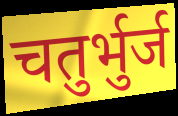
चतुर्भुर्ज